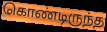
கொண்டிருந்த